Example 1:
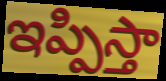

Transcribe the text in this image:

ఇప్పిస్తా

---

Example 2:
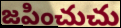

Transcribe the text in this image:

జపించుచు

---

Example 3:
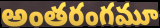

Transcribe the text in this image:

అంతరంగమూ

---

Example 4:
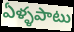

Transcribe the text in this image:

ఏళ్ళపాటు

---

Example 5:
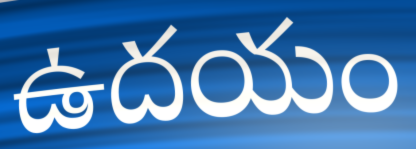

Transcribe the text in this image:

ఉదయం